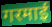
गरमाई